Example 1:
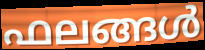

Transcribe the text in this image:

ഫലങ്ങൾ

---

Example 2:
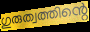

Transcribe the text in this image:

ഗുരുത്വത്തിന്റെ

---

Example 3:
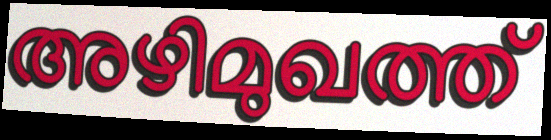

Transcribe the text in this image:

അഴിമുഖത്ത്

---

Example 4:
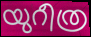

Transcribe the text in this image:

യുറീത്ര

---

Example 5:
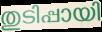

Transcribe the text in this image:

തുടിപ്പായി